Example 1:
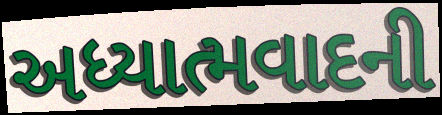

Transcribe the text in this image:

અધ્યાત્મવાદની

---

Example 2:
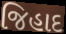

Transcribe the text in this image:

જિહાદ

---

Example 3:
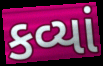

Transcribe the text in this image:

કવ્યાં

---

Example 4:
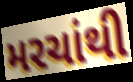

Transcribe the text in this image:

મરચાંથી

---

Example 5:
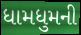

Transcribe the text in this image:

ધામધુમની